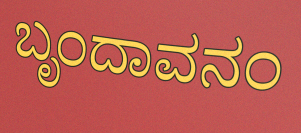
ಬೃಂದಾವನಂ